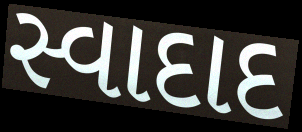
સ્વાદાદ